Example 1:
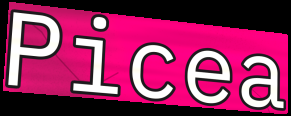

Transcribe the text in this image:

Picea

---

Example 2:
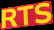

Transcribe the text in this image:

RTS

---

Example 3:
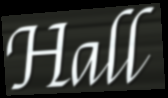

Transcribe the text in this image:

Hall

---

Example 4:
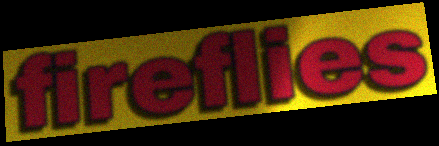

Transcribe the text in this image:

fireflies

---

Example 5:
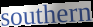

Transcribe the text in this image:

southern